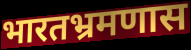
भारतभ्रमणास